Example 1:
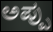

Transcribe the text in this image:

ಅಪ್ಪು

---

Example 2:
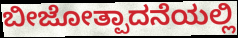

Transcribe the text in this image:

ಬೀಜೋತ್ಪಾದನೆಯಲ್ಲಿ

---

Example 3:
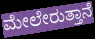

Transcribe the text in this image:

ಮೇಲೇರುತ್ತಾನೆ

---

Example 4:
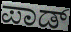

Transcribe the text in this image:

ಪಾಡ್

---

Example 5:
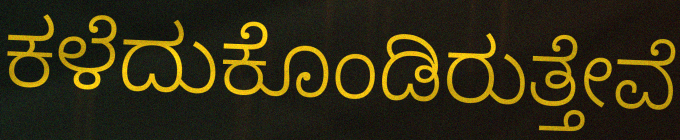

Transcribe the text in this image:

ಕಳೆದುಕೊಂಡಿರುತ್ತೇವೆ